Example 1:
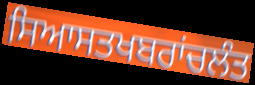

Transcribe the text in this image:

ਸਿਆਸਤਖਬਰਾਂਚਲੰਤ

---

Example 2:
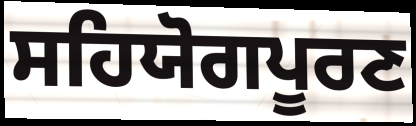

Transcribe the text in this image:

ਸਹਿਯੋਗਪੂਰਣ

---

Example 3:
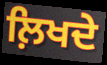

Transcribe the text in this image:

ਲ਼ਿਖਦੇ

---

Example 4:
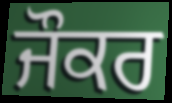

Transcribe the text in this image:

ਜੌਕਰ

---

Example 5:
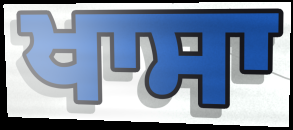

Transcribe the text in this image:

ਖਾਸਾ